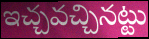
ఇచ్చవచ్చినట్టు